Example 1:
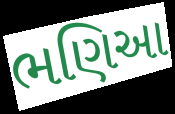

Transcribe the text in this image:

ભણિઆ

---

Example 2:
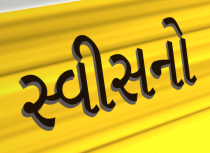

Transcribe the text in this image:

સ્વીસનો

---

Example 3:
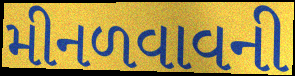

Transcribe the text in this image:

મીનળવાવની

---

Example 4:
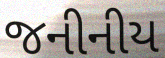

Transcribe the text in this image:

જનીનીય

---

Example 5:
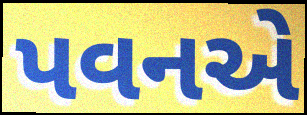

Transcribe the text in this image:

પવનએ